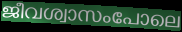
ജീവശ്വാസംപോലെ